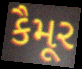
કૈમૂર